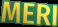
MERI